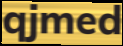
qjmed